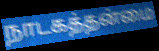
நாடகத்தன்மை